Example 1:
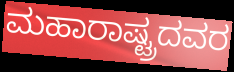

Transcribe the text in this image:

ಮಹಾರಾಷ್ಟ್ರದವರ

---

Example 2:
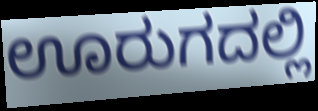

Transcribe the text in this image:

ಊರುಗದಲ್ಲಿ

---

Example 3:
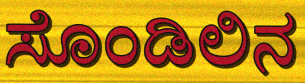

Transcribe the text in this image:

ಸೊಂಡಿಲಿನ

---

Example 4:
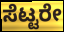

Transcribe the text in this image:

ಸೆಟ್ಟರೇ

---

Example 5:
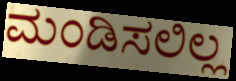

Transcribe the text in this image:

ಮಂಡಿಸಲಿಲ್ಲ